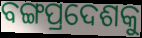
ବଙ୍ଗପ୍ରଦେଶକୁ